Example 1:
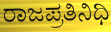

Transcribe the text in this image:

ರಾಜಪ್ರತಿನಿಧಿ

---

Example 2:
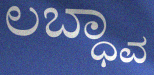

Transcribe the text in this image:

ಲಬ್ಧ್ವಾ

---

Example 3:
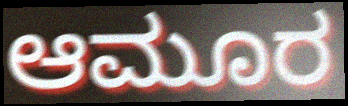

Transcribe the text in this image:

ಆಮೂರ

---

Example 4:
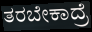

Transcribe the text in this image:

ತರಬೇಕಾದ್ರೆ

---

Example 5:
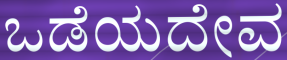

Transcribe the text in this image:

ಒಡೆಯದೇವ